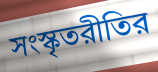
সংস্কৃতরীতির